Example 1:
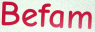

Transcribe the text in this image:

Befam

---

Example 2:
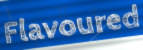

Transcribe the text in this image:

Flavoured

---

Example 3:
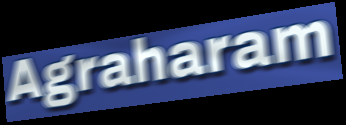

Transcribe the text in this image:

Agraharam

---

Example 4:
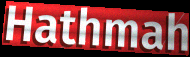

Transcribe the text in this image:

Hathmah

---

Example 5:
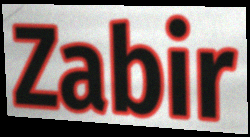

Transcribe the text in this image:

Zabir